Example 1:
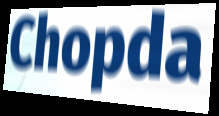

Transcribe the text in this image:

Chopda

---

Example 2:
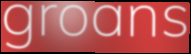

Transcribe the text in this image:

groans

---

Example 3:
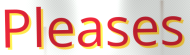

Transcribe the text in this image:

Pleases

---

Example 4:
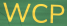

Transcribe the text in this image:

WCP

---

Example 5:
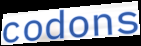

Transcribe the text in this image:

codons